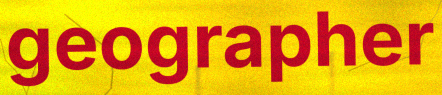
geographer